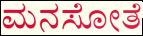
ಮನಸೋತೆ